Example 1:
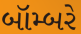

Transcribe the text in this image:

બૉમ્બરે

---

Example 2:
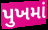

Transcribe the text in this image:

પુખમાં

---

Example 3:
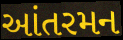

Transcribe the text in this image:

આંતરમન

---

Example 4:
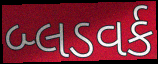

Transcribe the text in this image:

બ્લડવર્ક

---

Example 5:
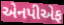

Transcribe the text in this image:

એનપીએફ